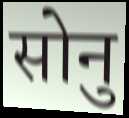
सोनु